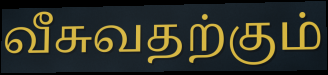
வீசுவதற்கும்